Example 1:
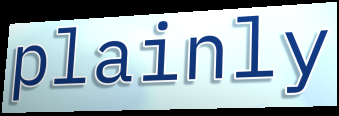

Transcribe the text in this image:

plainly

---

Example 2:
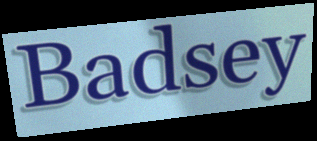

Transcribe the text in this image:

Badsey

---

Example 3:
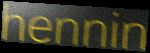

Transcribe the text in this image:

hennin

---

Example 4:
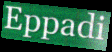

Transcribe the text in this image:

Eppadi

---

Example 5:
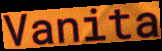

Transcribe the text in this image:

Vanita